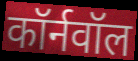
कॉर्नवॉल